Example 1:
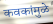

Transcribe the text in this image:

कवकांमुळे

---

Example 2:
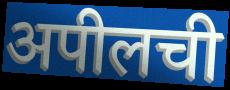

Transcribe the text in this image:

अपीलची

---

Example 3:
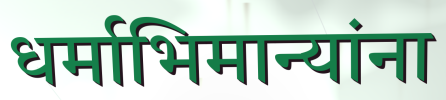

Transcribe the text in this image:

धर्माभिमान्यांना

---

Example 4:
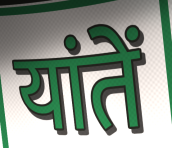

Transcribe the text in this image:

यांतें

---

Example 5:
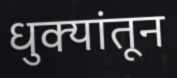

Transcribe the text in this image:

धुक्यांतून